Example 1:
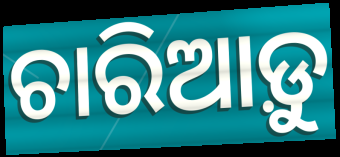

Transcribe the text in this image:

ଚାରିଆଡ଼ୁ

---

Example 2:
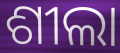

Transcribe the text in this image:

ଶୀଲା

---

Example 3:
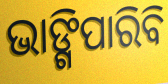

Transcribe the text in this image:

ଭାଙ୍ଗିପାରିବି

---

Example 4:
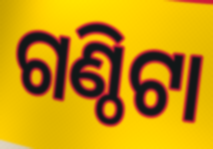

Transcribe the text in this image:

ଗଣ୍ଠିଟା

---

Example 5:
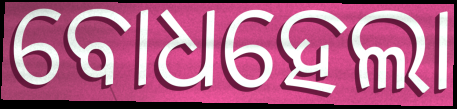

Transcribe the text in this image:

ବୋଧହେଲା